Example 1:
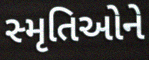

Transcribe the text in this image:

સ્મૃતિઓને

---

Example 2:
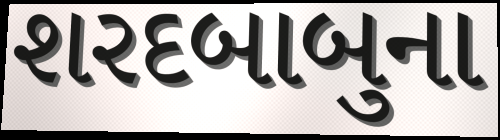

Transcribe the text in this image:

શરદબાબુના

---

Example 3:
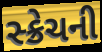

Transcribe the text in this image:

સ્ક્રેચની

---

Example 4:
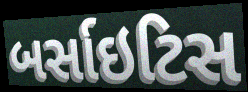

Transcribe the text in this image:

બર્સાઇટિસ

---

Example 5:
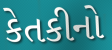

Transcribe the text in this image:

કેતકીનો